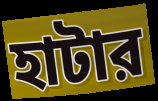
হাটার